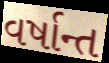
વર્ષાન્ત